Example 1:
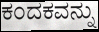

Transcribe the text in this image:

ಕಂದಕವನ್ನು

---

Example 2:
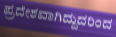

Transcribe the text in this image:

ಪ್ರದೇಶವಾಗಿದ್ದುದರಿಂದ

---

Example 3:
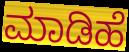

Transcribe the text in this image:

ಮಾಡಿಹೆ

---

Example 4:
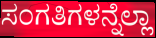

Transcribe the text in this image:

ಸಂಗತಿಗಳನ್ನೆಲ್ಲಾ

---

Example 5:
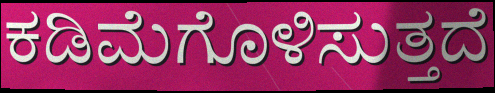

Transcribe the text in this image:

ಕಡಿಮೆಗೊಳಿಸುತ್ತದೆ